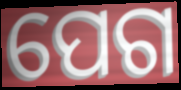
ପେଗ